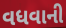
વધવાની